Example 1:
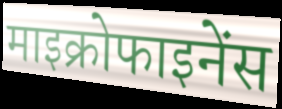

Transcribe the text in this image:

माइक्रोफाइनेंस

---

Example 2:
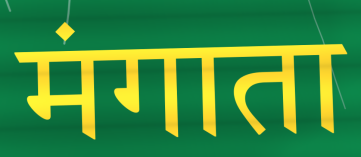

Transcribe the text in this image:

मंगाता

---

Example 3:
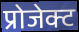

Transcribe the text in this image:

प्रोजेक्ट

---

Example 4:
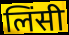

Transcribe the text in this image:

लिंसी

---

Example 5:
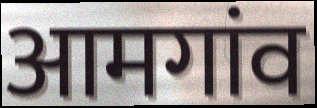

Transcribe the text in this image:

आमगांव